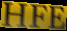
HFE